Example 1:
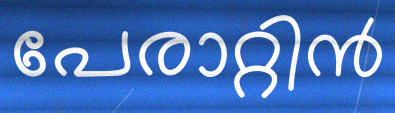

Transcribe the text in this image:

പേരാറ്റിൻ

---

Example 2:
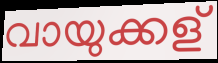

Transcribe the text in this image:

വായുക്കള്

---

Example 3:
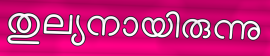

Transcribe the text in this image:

തുല്യനായിരുന്നു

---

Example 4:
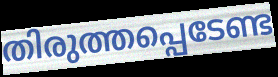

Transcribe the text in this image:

തിരുത്തപ്പെടേണ്ട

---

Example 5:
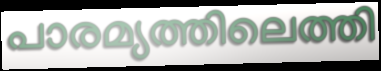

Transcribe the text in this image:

പാരമ്യത്തിലെത്തി